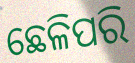
ଛେଳିପରି